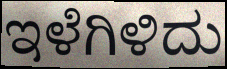
ಇಳೆಗಿಳಿದು